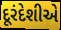
દૂરંદેશીએ